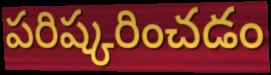
పరిష్కరించడం